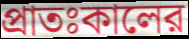
প্রাতঃকালের